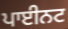
ਪਾਈਨਟ